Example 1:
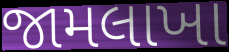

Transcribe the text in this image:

જામલાખા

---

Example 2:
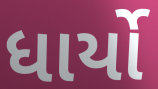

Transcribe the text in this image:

ધાર્યો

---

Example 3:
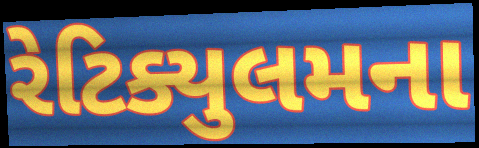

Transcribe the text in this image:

રેટિક્યુલમના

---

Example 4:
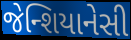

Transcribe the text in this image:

જેન્શિયાનેસી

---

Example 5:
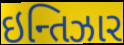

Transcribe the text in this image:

ઇન્તિઝાર